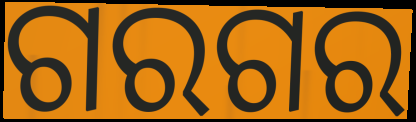
ଗରଗର